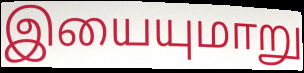
இயையுமாறு